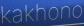
kakhono